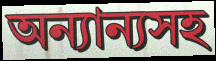
অন্যান্যসহ